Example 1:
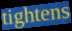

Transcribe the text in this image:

tightens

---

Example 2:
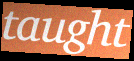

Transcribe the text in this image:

taught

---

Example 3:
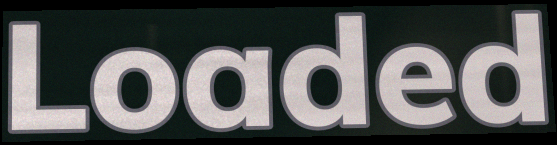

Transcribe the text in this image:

Loaded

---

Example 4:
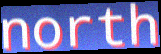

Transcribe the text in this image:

north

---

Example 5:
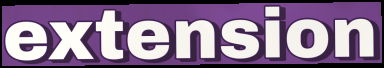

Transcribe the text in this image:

extension